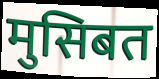
मुसिबत